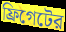
ফ্রিগেটের